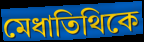
মেধাতিথিকে